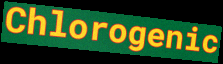
Chlorogenic